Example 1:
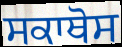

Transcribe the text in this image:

ਸਕਾਥੋਸ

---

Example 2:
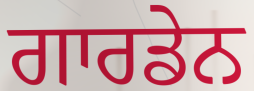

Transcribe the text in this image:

ਗਾਰਡੇਨ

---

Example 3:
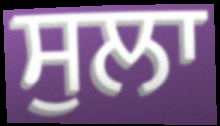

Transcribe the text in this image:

ਸੁਲਾ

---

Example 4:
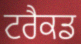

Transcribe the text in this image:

ਟਰੈਕਡ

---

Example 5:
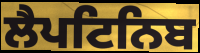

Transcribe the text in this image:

ਲੈਪਟਿਨਿਬ